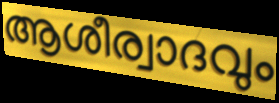
ആശീര്വാദവും